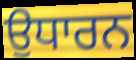
ਉਧਾਰਨ